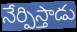
నేర్పిస్తాడు